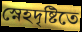
স্নেহদৃষ্টিতে